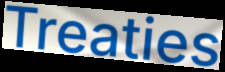
Treaties